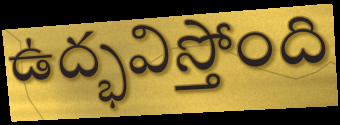
ఉద్భవిస్తోంది